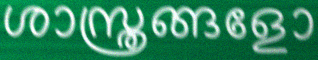
ശാസ്ത്രങ്ങളോ